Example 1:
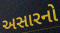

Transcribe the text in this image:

અસારનો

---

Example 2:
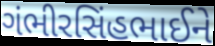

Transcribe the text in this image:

ગંભીરસિંહભાઈને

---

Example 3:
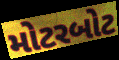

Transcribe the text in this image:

મોટરબોટ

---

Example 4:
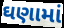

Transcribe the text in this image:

ઘણામાં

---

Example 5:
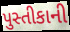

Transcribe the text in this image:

પુસ્તીકાની